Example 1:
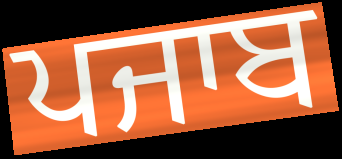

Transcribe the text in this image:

ਪਜਾਬ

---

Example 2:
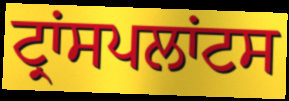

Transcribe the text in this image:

ਟ੍ਰਾਂਸਪਲਾਂਟਸ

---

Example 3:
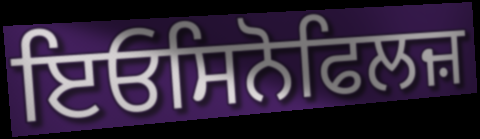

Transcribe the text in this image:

ਇਓਸਿਨੋਫਿਲਜ਼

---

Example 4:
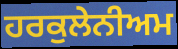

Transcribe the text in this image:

ਹਰਕੁਲੇਨੀਅਮ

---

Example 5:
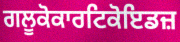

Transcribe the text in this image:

ਗਲੂਕੋਕਾਰਟਿਕੋਇਡਜ਼